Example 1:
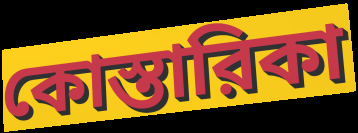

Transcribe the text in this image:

কোস্তারিকা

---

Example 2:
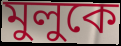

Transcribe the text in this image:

মুলুকে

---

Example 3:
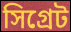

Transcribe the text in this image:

সিগ্রেট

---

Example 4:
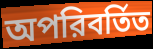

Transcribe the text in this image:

অপরিবর্তিত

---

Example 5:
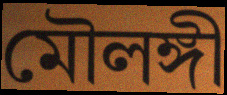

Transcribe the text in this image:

মৌলঙ্গী